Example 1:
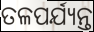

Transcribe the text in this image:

ତଳପର୍ଯ୍ୟନ୍ତ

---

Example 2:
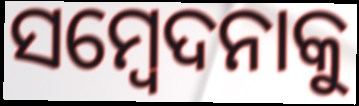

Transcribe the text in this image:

ସମ୍ବେଦନାକୁ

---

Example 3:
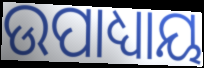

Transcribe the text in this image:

ଉପାଧ୍ୟାୟ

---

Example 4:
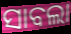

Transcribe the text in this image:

ସାବଲା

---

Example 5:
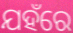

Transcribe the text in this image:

ଯହଁରେ